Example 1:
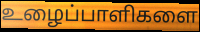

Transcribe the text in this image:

உழைப்பாளிகளை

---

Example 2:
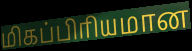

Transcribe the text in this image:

மிகப்பிரியமான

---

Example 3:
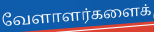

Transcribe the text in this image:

வேளாளர்களைக்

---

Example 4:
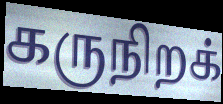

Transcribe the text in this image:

கருநிறக்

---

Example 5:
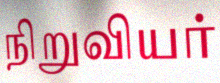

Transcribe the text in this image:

நிறுவியர்